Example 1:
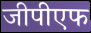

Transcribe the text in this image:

जीपीएफ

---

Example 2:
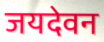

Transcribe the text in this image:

जयदेवन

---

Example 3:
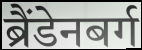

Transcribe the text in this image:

ब्रैंडेनबर्ग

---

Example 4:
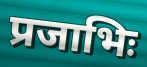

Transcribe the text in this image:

प्रजाभिः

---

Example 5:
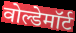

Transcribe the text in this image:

वोल्डेमॉर्ट